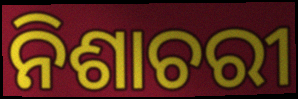
ନିଶାଚରୀ